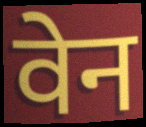
वेन